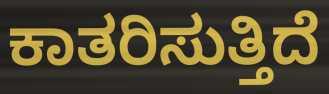
ಕಾತರಿಸುತ್ತಿದೆ